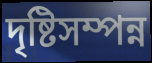
দৃষ্টিসম্পন্ন